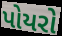
પોયરો